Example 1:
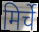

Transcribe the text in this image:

मिर्चे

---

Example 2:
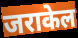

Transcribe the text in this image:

जराकेल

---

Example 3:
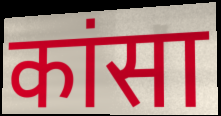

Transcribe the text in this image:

कांसा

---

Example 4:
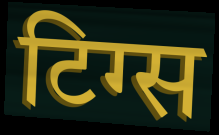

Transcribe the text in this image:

टिग्स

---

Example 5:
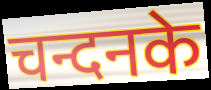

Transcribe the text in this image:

चन्दनके